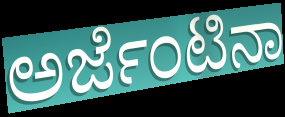
ಅರ್ಜೆಂಟಿನಾ